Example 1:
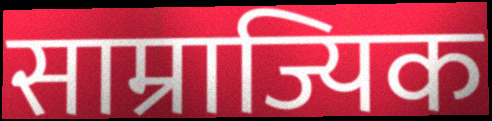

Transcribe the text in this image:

साम्राज्यिक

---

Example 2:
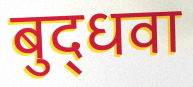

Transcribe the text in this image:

बुद्धवा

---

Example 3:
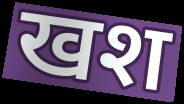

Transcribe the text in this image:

खश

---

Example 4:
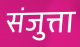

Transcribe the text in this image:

संजुत्ता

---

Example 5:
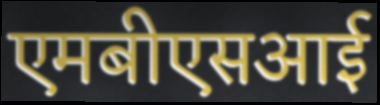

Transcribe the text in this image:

एमबीएसआई